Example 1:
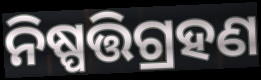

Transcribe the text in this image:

ନିଷ୍ପତ୍ତିଗ୍ରହଣ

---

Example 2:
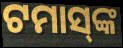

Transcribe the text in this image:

ଟମାସ୍‌ଙ୍କ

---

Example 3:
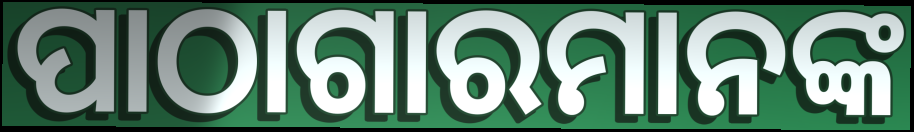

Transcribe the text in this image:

ପାଠାଗାରମାନଙ୍କ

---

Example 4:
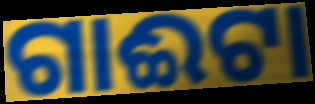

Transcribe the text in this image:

ଗାଈଟା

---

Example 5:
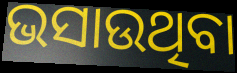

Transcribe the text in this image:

ଭସାଉଥିବା